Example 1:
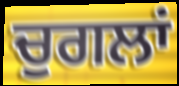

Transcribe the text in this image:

ਚੁਗਲਾਂ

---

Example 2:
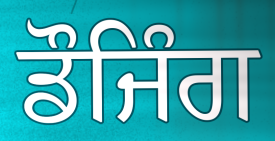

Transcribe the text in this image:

ਡੌਜਿੰਗ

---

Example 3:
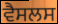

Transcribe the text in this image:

ਵੈਸਲਸ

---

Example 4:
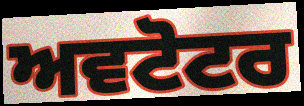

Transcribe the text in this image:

ਅਵਟੋਟਰ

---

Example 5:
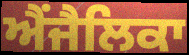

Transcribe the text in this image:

ਐਂਜੈਲਿਕਾ